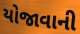
યોજાવાની